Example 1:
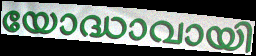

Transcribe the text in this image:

യോദ്ധാവായി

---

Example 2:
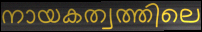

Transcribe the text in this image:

നായകത്വത്തിലെ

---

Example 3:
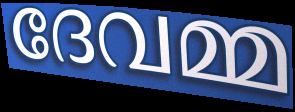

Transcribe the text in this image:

ദേവമ്മ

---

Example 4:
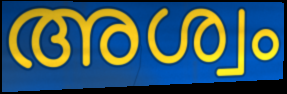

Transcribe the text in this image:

അശ്വം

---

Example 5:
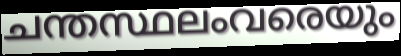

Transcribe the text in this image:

ചന്തസ്ഥലംവരെയും